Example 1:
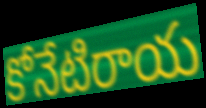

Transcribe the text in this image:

కోనేటిరాయ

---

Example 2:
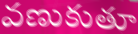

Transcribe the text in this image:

వణుకుతూ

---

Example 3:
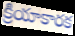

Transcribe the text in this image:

క్రియాకారక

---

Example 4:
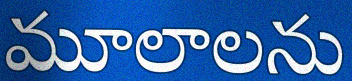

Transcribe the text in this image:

మూలాలను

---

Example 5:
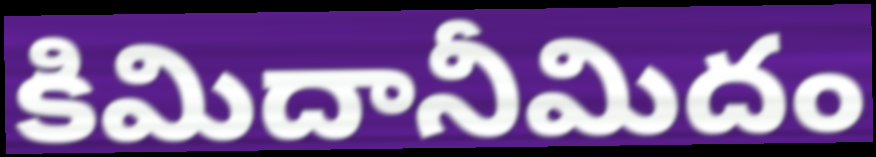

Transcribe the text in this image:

కిమిదానీమిదం